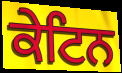
ਕੇਟਿਨ